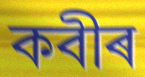
কবীৰ